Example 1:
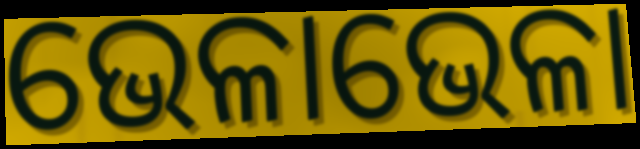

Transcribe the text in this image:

ଭେଳାଭେଳା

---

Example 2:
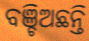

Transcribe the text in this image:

ବଞ୍ଚିଅଛନ୍ତି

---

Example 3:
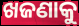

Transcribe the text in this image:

ଖଜଣାକୁ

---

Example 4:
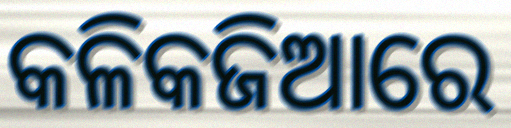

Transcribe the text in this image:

କଳିକଜିଆରେ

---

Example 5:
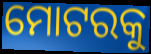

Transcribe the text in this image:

ମୋଟରକୁ